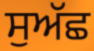
ਸੁਅੱਛ